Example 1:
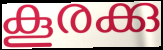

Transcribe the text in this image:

കൂരക്കു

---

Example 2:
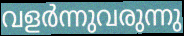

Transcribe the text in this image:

വളർന്നുവരുന്നു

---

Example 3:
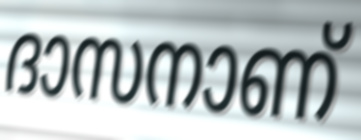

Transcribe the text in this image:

ദാസനാണ്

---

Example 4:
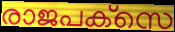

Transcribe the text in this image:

രാജപക്‌സെ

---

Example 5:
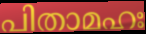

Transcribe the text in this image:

പിതാമഹഃ